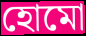
হোমো